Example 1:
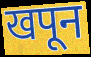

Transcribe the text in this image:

खपून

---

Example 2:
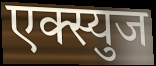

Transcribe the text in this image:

एक्स्युज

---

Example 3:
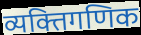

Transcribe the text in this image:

व्यक्तिगणिक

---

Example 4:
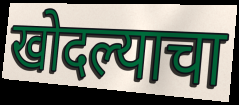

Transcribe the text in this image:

खोदल्याचा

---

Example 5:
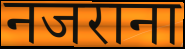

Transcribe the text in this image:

नजराना